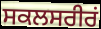
ਸਕਲਸਰੀਰਂ